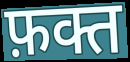
फ़क्त